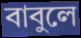
বাবুলে